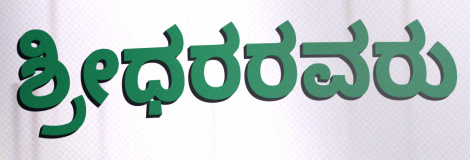
ಶ್ರೀಧರರವರು